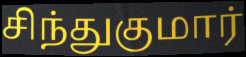
சிந்துகுமார்